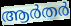
ആർതർ